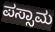
ಪಸ್ಸಾಮ